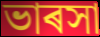
ভাৰসা